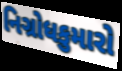
નિગ્રોધકુમારો